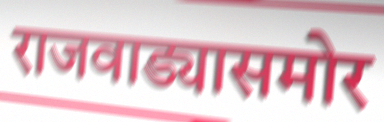
राजवाड्यासमोर